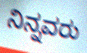
ನಿನ್ನವರು